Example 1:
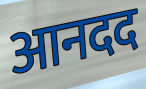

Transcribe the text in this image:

आनदद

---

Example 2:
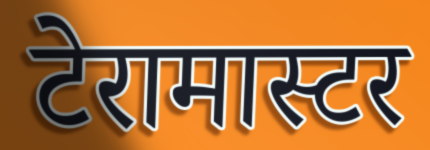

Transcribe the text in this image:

टेरामास्टर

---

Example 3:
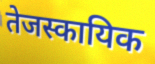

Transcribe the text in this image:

तेजस्कायिक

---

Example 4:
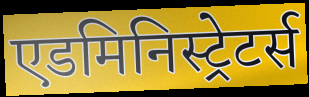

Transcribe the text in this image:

एडमिनिस्ट्रेटर्स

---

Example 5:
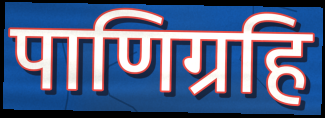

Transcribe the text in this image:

पाणिग्रहि